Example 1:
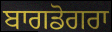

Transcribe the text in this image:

ਬਾਗਡੋਗਰਾ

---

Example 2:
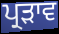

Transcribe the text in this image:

ਪ੍ਰੜਾਵ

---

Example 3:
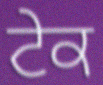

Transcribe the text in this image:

ਟੇਕ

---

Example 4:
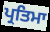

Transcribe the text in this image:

ਪ੍ਰਤਿਮਾ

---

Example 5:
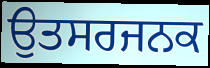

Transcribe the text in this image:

ਉਤਸਰਜਨਕ